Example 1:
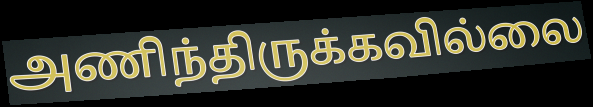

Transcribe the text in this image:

அணிந்திருக்கவில்லை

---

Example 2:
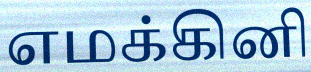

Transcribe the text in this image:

எமக்கினி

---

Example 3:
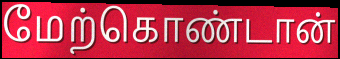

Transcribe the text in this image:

மேற்கொண்டான்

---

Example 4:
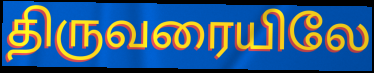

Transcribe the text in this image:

திருவரையிலே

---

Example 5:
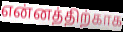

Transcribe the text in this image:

என்னத்திற்காக